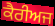
ਕੈਰੀਅਜ